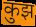
कुझ